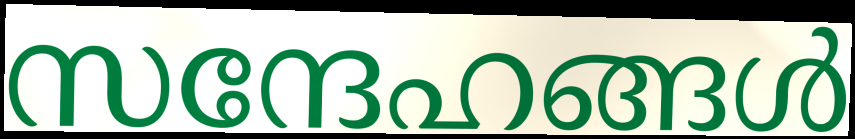
സന്ദേഹങ്ങൾ